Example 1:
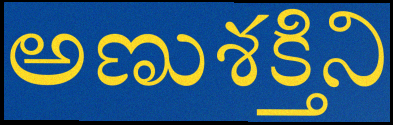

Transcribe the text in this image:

అణుశక్తిని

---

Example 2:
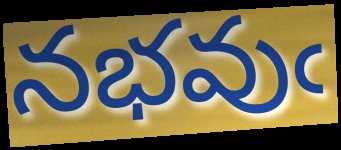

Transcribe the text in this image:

నభవుఁ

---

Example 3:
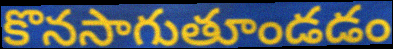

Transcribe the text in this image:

కొనసాగుతూండడం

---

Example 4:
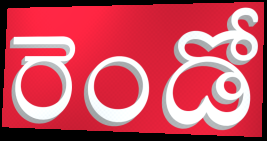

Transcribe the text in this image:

రెండో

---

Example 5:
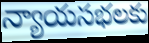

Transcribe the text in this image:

న్యాయసభలకు